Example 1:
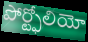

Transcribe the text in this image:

పోర్ట్ఫోలియో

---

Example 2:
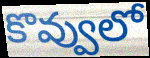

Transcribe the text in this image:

కొవ్వులో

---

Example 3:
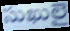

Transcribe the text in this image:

సుఖులై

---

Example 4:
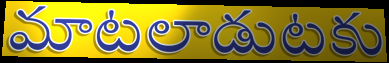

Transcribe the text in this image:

మాటలాడుటకు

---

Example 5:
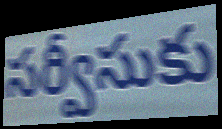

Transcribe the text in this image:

సర్వీసుకు